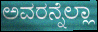
ಅವರನ್ನೆಲ್ಲಾ